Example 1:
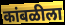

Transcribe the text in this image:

कांबळीला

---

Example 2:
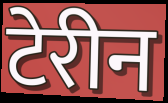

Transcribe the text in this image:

टेरीन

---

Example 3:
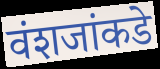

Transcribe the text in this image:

वंशजांकडे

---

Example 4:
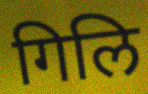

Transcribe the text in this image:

गिलि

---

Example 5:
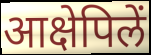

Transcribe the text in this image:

आक्षेपिलें